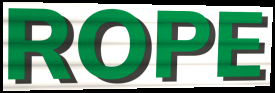
ROPE